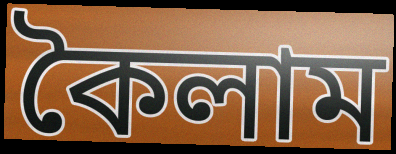
কৈলাম